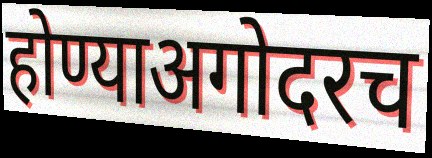
होण्याअगोदरच